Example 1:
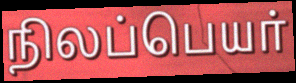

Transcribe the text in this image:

நிலப்பெயர்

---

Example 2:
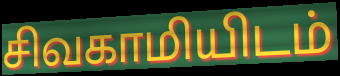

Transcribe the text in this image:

சிவகாமியிடம்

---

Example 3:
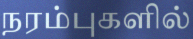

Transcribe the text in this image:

நரம்புகளில்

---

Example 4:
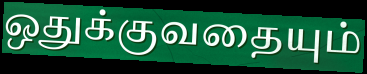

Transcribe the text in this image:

ஒதுக்குவதையும்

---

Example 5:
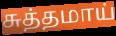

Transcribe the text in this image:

சுத்தமாய்